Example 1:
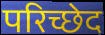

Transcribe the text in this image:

परिच्छेद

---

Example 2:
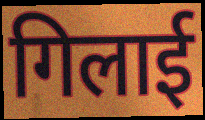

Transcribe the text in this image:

गिलाई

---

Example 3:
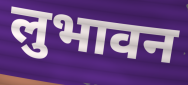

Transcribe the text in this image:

लुभावन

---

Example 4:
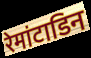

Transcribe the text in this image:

रेमांटाडिन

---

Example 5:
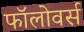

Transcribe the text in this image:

फॉलोवर्स